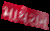
માથેરાન